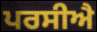
ਪਰਸੀਐ